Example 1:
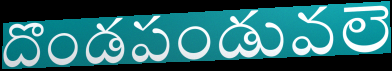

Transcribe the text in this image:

దొండపండువలె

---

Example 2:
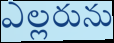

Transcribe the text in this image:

ఎల్లరును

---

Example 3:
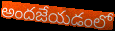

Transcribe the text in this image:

అందజేయడంలో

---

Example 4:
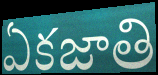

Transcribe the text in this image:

ఏకజాతి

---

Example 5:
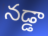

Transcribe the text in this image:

నడ్డా